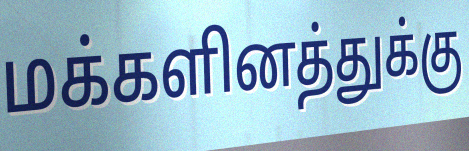
மக்களினத்துக்கு